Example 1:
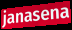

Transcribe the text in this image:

janasena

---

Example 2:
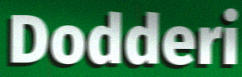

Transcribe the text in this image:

Dodderi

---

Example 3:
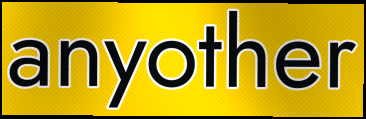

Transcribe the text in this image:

anyother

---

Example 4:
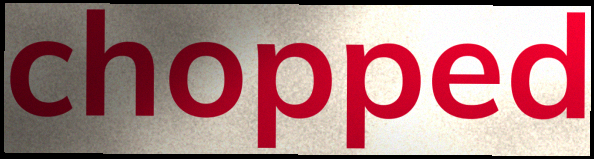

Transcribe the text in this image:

chopped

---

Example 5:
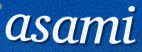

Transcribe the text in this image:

asami